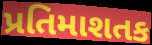
પ્રતિમાશતક